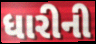
ધારીની